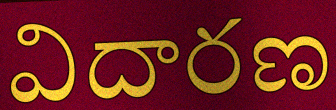
విదారణ